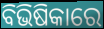
ବିଭିଷିକାରେ